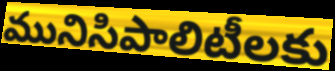
మునిసిపాలిటీలకు